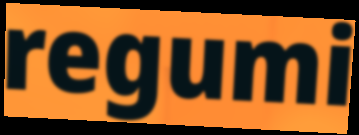
regumi